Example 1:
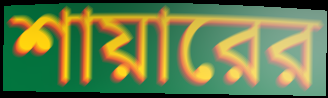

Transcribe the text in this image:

শায়ারের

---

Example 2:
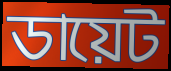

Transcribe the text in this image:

ডায়েট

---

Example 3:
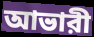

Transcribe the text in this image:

আভারী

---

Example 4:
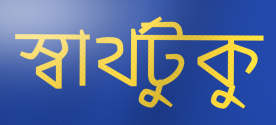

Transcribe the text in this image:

স্বার্থটুকু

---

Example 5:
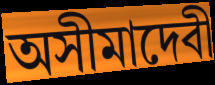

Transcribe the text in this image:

অসীমাদেবী